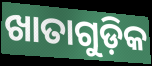
ଖାତାଗୁଡ଼ିକ